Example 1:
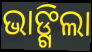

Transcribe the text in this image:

ଭାଙ୍ଗିଲା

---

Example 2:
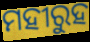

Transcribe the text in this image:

ମହୀରୁହ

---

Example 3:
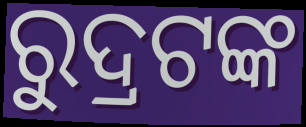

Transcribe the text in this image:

ରୁଦ୍ରଟଙ୍କ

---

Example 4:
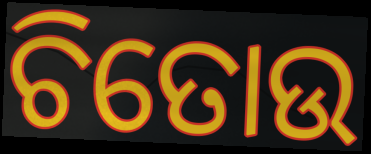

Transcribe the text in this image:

ଚିତୋଉ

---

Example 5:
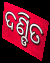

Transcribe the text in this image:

ଦଣ୍ଡିତ